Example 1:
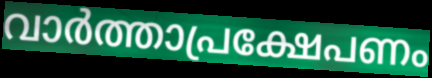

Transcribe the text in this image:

വാർത്താപ്രക്ഷേപണം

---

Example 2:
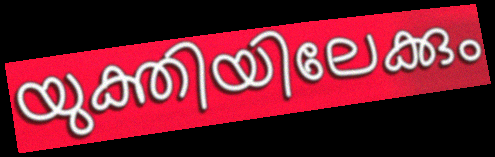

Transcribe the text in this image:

യുക്തിയിലേക്കും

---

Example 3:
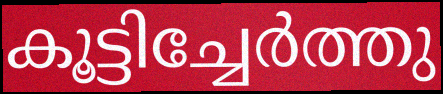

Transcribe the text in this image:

കൂട്ടിച്ചേർത്തു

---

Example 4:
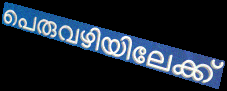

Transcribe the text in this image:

പെരുവഴിയിലേക്ക്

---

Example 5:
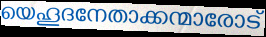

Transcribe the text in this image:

യെഹൂദനേതാക്കന്മാരോട്